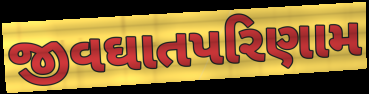
જીવઘાતપરિણામ